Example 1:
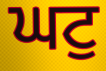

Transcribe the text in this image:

ਘਟੁ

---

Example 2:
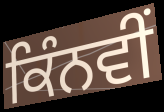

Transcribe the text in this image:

ਕਿੰਨਵੀਂ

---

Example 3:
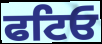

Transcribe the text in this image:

ਫਟਿਓ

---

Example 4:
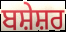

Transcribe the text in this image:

ਬਸ਼ੇਸ਼ਰ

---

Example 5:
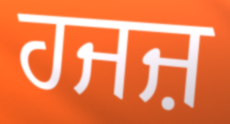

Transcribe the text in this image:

ਹਜਜ਼